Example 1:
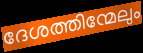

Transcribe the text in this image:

ദേശത്തിന്മേലും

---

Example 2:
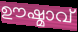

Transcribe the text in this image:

ഊഷ്മാവ്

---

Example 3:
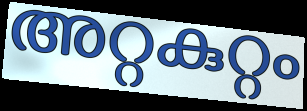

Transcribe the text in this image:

അറ്റകുറ്റം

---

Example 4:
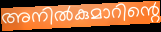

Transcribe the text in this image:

അനിൽകുമാറിന്റെ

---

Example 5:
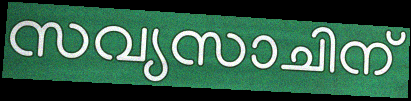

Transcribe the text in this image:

സവ്യസാചിന്